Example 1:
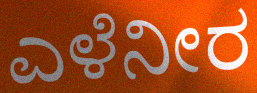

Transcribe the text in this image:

ಎಳೆನೀರ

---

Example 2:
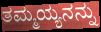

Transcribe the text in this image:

ತಮ್ಮಯ್ಯನನ್ನು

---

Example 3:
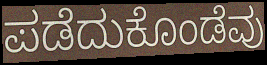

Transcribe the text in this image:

ಪಡೆದುಕೊಂಡೆವು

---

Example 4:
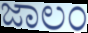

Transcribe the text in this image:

ಜಾಲಂ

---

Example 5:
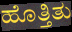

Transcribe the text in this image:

ಹೊತ್ತಿತು